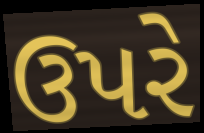
ઉપરે